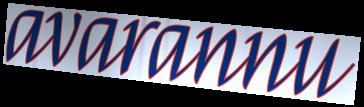
avarannu